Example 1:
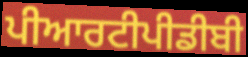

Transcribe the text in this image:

ਪੀਆਰਟੀਪੀਡੀਬੀ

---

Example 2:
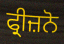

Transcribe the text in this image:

ਫ੍ਰੀਜ਼ਨੋ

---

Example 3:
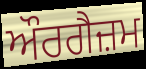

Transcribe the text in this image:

ਔਰਗੈਜ਼ਮ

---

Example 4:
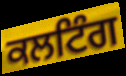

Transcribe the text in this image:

ਕਲਟਿੰਗ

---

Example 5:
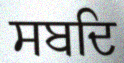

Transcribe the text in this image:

ਸਬਦਿ